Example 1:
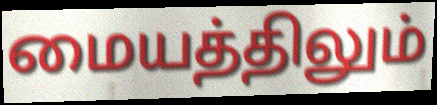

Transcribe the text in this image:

மையத்திலும்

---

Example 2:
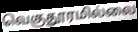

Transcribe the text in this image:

வெகுதூரமில்லை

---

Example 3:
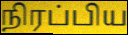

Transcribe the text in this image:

நிரப்பிய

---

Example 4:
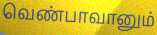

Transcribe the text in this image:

வெண்பாவானும்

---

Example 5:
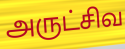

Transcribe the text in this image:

அருட்சிவ